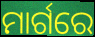
ମାର୍ଗରେ